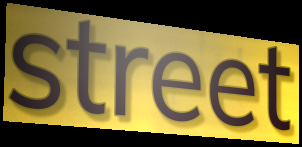
street